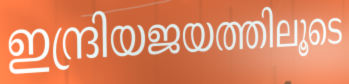
ഇന്ദ്രിയജയത്തിലൂടെ